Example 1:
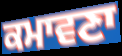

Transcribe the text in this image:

ਕਮਾਵਣਾ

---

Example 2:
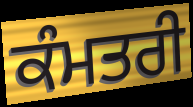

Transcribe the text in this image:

ਕੰਮਤਰੀ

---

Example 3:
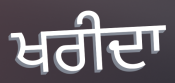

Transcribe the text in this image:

ਖਰੀਦਾ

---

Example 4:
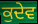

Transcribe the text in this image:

ਕੁਦੇਵ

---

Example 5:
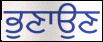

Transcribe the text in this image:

ਭੁਣਾਉਣ